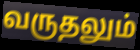
வருதலும்